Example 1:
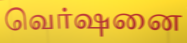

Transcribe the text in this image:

வெர்ஷனை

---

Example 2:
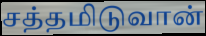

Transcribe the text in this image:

சத்தமிடுவான்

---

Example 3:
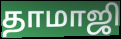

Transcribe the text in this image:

தாமாஜி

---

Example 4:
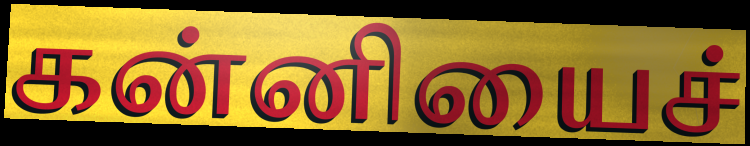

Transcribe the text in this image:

கன்னியைச்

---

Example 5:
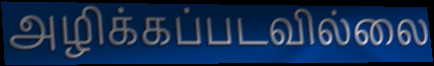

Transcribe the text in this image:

அழிக்கப்படவில்லை